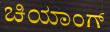
ಚಿಯಾಂಗ್